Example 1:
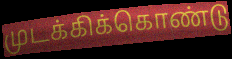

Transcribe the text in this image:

முடக்கிக்கொண்டு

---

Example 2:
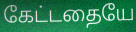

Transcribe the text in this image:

கேட்டதையே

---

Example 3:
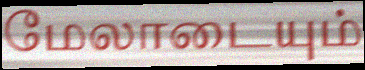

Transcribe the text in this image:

மேலாடையும்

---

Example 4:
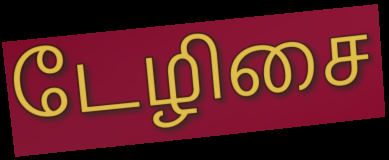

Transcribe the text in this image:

டேழிசை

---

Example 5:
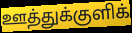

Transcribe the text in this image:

ஊத்துக்குளிக்